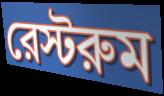
রেস্টরুম